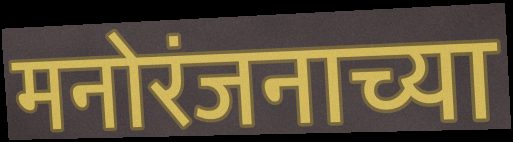
मनोरंजनाच्या